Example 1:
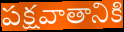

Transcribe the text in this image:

పక్షవాతానికి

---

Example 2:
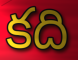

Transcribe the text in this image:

కది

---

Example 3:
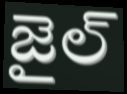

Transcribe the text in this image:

జైల్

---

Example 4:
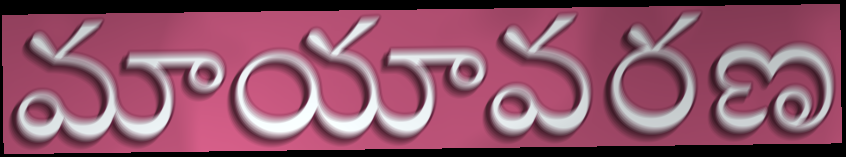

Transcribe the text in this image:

మాయావరణ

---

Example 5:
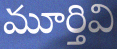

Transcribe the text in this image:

మూర్తివి